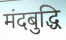
मंदबुद्धि